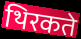
थिरकते